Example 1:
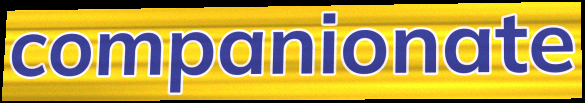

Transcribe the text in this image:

companionate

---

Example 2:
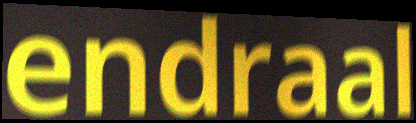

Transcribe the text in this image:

endraal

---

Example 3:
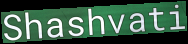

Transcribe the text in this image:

Shashvati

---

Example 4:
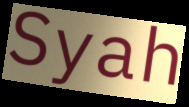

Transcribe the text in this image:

Syah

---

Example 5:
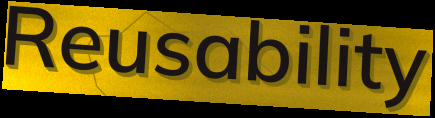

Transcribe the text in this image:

Reusability